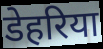
डेहरिया